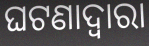
ଘଟଣାଦ୍ୱାରା